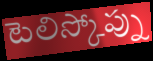
టెలిస్కోప్ను